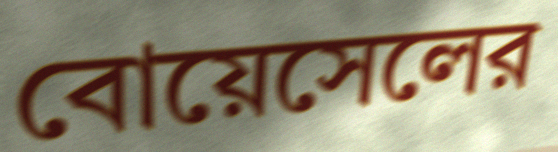
বোয়েসেলের